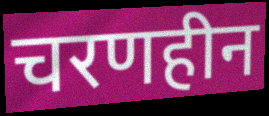
चरणहीन